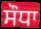
ਸੌਧਾ